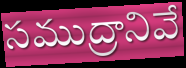
సముద్రానివే